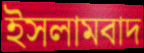
ইসলামবাদ